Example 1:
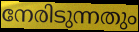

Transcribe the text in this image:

നേരിടുന്നതും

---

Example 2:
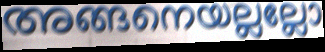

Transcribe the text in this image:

അങ്ങനെയല്ലല്ലോ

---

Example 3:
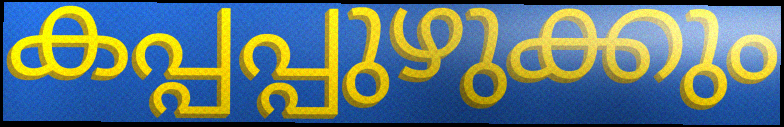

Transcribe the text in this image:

കപ്പപ്പുഴുക്കും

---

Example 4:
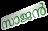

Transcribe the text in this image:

സാജൻ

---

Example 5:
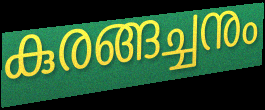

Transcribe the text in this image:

കുരങ്ങച്ചനും